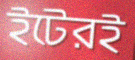
ইটেরই